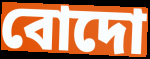
বোদো